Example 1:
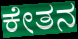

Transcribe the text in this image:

ಕೇತನ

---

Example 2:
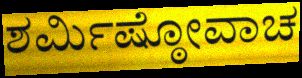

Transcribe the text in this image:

ಶರ್ಮಿಷ್ಠೋವಾಚ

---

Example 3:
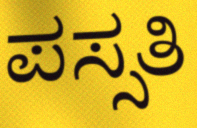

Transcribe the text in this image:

ಪಸ್ಸತಿ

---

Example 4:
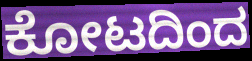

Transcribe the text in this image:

ಕೋಟದಿಂದ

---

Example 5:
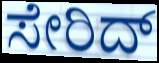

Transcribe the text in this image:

ಸೇರಿದ್